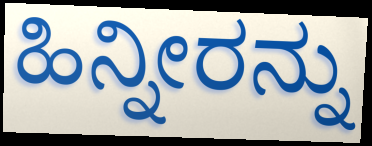
ಹಿನ್ನೀರನ್ನು